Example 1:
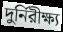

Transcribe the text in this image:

দুর্নিরীক্ষ্য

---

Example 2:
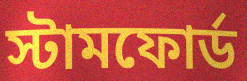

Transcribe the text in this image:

স্টামফোর্ড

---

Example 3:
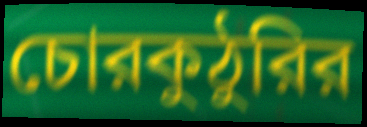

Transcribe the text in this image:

চোরকুঠুরির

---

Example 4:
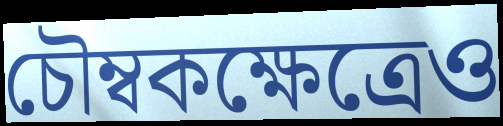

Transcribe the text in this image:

চৌম্বকক্ষেত্রেও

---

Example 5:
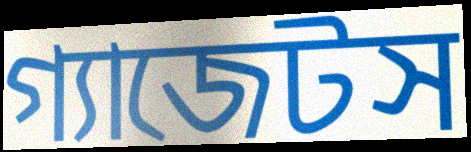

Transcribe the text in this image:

গ্যাজেটস